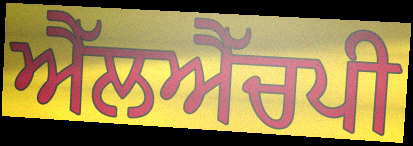
ਐੱਲਐੱਚਪੀ